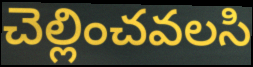
చెల్లించవలసి